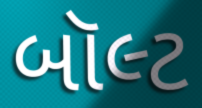
બૉલ્ટ